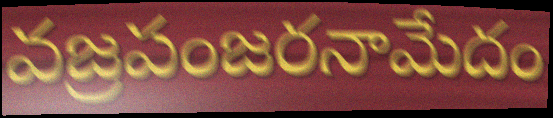
వజ్రపంజరనామేదం